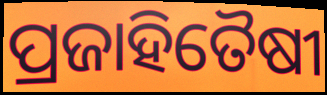
ପ୍ରଜାହିତୈଷୀ